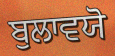
ਬੁਲਾਵਯੋ